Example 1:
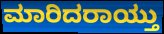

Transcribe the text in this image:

ಮಾರಿದರಾಯ್ತು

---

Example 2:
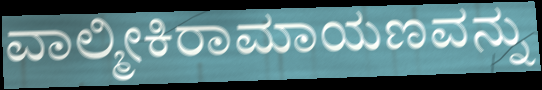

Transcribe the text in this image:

ವಾಲ್ಮೀಕಿರಾಮಾಯಣವನ್ನು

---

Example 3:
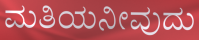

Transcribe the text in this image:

ಮತಿಯನೀವುದು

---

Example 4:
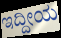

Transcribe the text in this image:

ಇದ್ದೀಯ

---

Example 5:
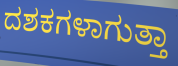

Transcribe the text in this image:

ದಶಕಗಳಾಗುತ್ತಾ